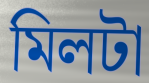
মিলটা